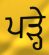
ਪਡ਼੍ਹੇ